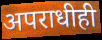
अपराधीही